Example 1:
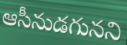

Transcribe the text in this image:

ఆసీనుడగునని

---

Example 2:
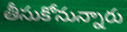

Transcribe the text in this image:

తీసుకోనున్నారు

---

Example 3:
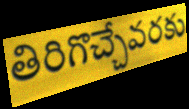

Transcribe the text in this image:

తిరిగొచ్చేవరకు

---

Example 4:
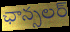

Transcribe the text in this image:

ఛాన్సలర్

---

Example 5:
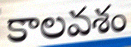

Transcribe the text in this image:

కాలవశం